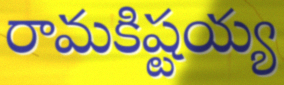
రామకిష్టయ్య